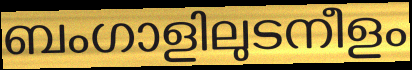
ബംഗാളിലുടനീളം